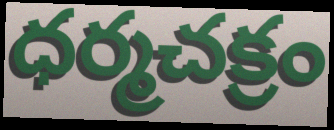
ధర్మచక్రం